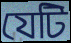
যেটি